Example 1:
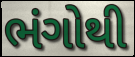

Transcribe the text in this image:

ભંગોથી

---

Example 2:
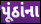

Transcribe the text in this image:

પૂંઠાંના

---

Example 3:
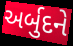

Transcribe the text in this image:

અર્બુદને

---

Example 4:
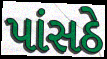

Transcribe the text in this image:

પાંસઠે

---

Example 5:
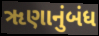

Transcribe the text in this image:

ૠણાનુંબંધ